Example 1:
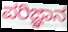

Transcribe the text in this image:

ಪರಿಜ್ಞಾನ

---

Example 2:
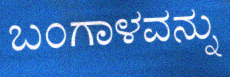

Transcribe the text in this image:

ಬಂಗಾಳವನ್ನು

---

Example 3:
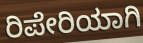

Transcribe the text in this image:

ರಿಪೇರಿಯಾಗಿ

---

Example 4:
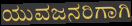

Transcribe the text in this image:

ಯುವಜನರಿಗಾಗಿ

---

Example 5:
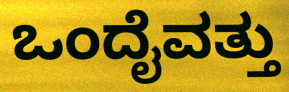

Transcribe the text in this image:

ಒಂದೈವತ್ತು